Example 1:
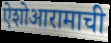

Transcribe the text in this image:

ऐशोआरामाची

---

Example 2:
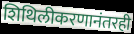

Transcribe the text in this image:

शिथिलीकरणानंतरही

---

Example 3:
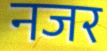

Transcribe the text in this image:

नजर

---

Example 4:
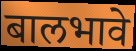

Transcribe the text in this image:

बालभावे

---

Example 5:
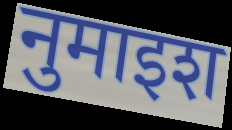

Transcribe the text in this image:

नुमाइश